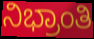
ನಿಭ್ರಾಂತಿ